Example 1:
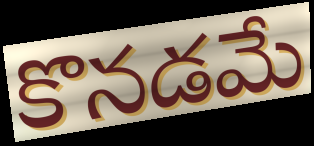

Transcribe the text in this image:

కొనడమే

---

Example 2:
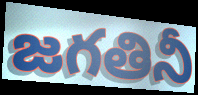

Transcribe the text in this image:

జగతినీ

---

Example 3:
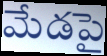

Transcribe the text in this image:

మేడపై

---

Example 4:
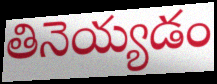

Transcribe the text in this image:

తినెయ్యడం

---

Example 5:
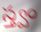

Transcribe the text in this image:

స్త్వం